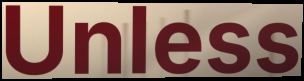
Unless